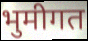
भुमीगत